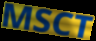
MSCT